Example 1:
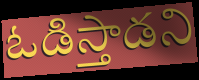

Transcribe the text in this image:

ఓడిస్తాడని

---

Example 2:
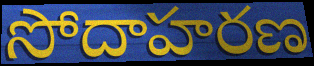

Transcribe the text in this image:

సోదాహరణ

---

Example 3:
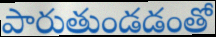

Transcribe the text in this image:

పారుతుండడంతో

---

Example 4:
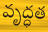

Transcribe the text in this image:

వృద్ధత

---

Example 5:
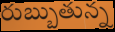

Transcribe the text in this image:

రుబ్బుతున్న